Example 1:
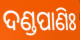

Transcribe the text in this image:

ଦଣ୍ଡପାଣିଃ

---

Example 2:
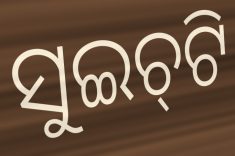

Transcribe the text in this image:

ସୁଇଚ୍‌ଟି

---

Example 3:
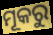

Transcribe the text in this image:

ମୂକରୁ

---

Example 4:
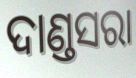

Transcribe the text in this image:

ଦାଣ୍ଡସରା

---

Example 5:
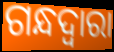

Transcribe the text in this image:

ଗନ୍ଧଦ୍ୱାରା